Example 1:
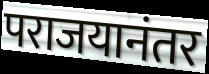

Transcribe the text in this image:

पराजयानंतर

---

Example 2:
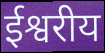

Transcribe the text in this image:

ईश्वरीय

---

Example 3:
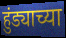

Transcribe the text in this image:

हुंड्याच्या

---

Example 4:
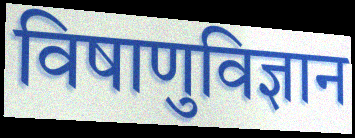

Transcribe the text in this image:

विषाणुविज्ञान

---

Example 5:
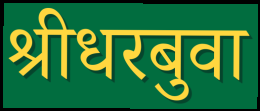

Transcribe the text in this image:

श्रीधरबुवा